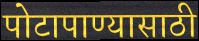
पोटापाण्यासाठी